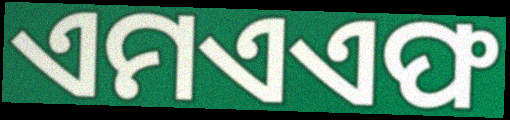
ଏମଏଏଫ